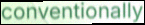
conventionally